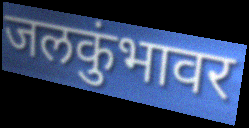
जलकुंभावर